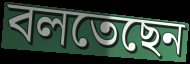
বলতেছেন